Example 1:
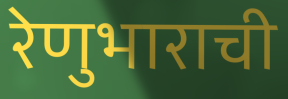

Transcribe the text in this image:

रेणुभाराची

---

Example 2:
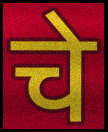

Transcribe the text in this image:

चे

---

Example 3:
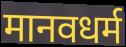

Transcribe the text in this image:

मानवधर्म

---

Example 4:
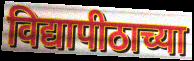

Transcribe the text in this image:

विद्यापीठाच्या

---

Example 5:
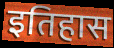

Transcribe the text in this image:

इतिहास